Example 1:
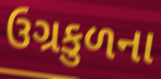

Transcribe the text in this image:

ઉગ્રકુળના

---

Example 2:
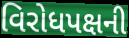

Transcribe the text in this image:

વિરોધપક્ષની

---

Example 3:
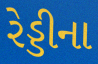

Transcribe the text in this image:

રેડ્ડીના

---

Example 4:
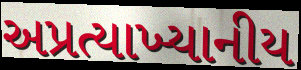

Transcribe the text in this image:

અપ્રત્યાખ્યાનીય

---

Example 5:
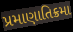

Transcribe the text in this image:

પ્રમાણાતિક્રમા